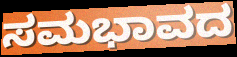
ಸಮಭಾವದ